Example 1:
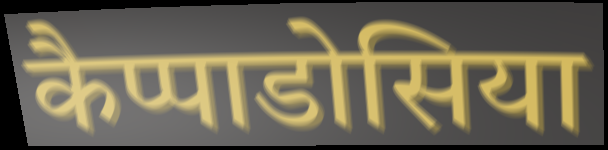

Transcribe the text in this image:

कैप्पाडोसिया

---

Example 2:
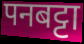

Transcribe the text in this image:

पनबट्टा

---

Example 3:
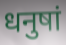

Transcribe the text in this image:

धनुषां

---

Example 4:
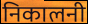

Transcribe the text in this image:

निकालनी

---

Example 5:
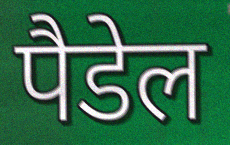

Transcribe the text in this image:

पैडेल